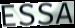
ESSA